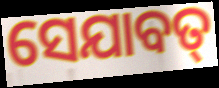
ସେଯାବତ୍